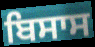
ਬਿਸਾਸ